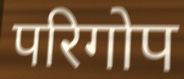
परिगोप